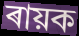
ৰায়ক